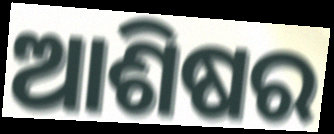
ଆଶିଷର